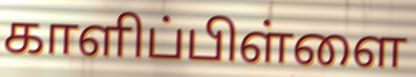
காளிப்பிள்ளை